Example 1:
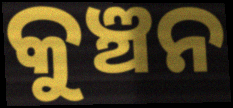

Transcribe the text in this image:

କୁଞ୍ଚନ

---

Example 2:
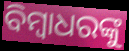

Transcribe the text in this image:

ବିମ୍ୱାଧରଙ୍କୁ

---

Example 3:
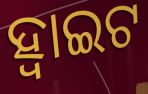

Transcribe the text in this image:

ହ୍ବାଇଟ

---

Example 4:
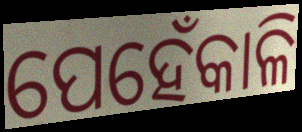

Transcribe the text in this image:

ପେହେଁକାଳି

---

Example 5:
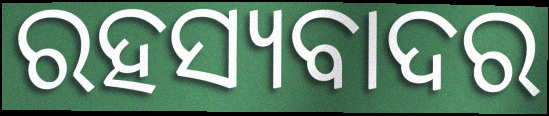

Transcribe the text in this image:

ରହସ୍ୟବାଦର